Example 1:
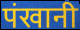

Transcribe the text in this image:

पंखानी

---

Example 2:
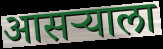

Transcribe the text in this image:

आसऱ्याला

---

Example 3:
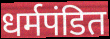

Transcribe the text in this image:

धर्मपंडित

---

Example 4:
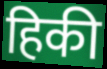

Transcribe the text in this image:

हिकी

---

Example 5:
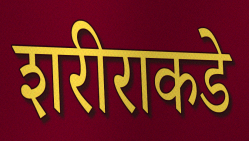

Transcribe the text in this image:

शरीराकडे